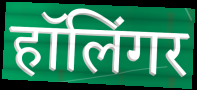
हॉलिंगर